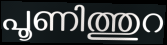
പൂണിത്തുറ